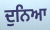
ਦੁਨਿਆ